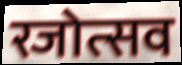
रजोत्सव